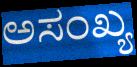
ಅಸಂಖ್ಯ